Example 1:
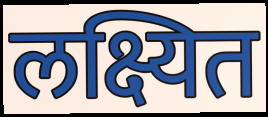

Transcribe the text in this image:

लक्ष्यित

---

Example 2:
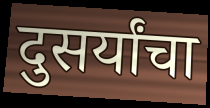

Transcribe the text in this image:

दुसर्यांचा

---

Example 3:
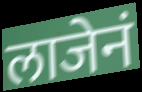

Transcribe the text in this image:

लाजेनं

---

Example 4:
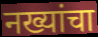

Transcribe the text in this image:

नख्यांचा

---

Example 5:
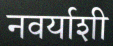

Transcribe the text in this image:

नवर्याशी